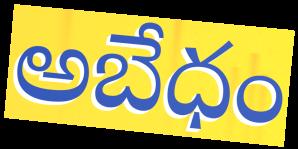
అబేధం